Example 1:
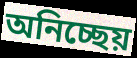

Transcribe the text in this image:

অনিচ্ছেয়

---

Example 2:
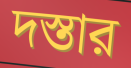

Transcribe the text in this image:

দস্তার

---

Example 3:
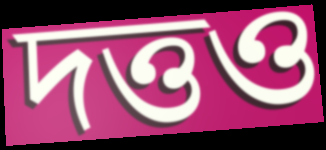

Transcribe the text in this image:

দত্তও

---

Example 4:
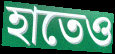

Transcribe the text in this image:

হাতেও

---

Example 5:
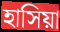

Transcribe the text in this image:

হাসিয়া